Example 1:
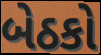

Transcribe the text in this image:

બેઠકો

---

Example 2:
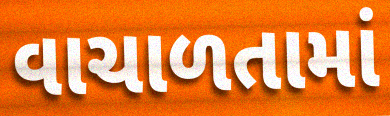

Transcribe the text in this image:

વાચાળતામાં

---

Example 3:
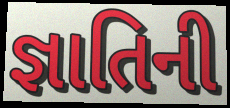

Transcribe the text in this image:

જ્ઞાતિની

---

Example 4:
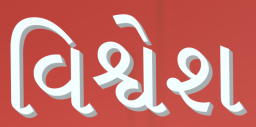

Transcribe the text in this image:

વિશ્વેશ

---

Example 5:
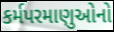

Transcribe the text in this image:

કર્મપરમાણુઓનો